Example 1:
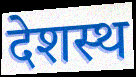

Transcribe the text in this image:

देशस्थ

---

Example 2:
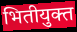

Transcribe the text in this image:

भितीयुक्त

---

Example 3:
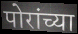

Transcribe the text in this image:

पोरांच्या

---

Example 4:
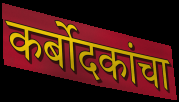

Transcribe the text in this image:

कर्बोदकांचा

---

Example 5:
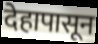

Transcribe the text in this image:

देहापासून